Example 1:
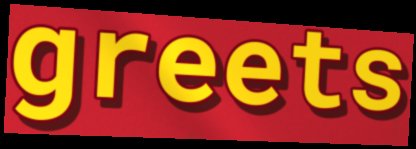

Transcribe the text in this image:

greets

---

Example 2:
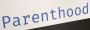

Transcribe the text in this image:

Parenthood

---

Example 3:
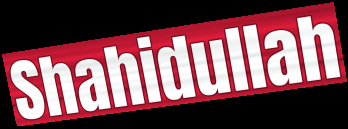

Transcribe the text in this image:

Shahidullah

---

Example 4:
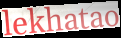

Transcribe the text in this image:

lekhatao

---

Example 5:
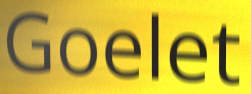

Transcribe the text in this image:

Goelet